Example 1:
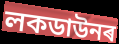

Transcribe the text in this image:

লকডাউনৰ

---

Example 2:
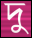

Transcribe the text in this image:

দু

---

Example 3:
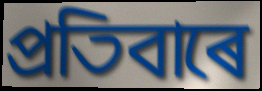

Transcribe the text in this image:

প্ৰতিবাৰে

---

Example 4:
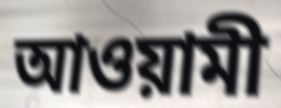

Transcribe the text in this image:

আওয়ামী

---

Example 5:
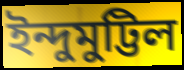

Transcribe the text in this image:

ইন্দুমুট্টিল